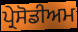
ਪ੍ਰੇਸੋਡੀਅਮ